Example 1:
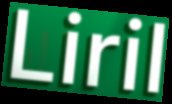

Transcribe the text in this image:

Liril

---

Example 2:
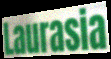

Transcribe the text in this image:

Laurasia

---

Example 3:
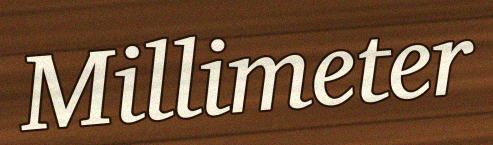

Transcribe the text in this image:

Millimeter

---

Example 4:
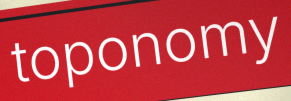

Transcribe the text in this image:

toponomy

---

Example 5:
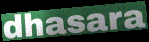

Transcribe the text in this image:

dhasara